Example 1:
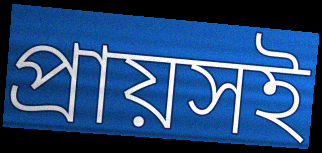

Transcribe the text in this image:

প্রায়সই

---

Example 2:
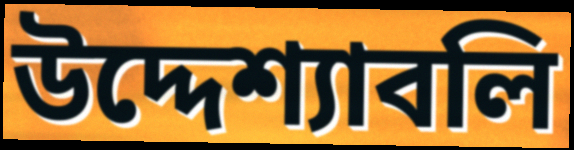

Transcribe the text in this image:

উদ্দেশ্যাবলি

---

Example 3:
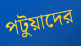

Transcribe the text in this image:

পটুয়াদের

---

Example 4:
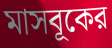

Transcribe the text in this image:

মাসবূকের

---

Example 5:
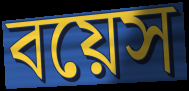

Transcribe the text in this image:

বয়েস